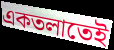
একতলাতেই